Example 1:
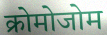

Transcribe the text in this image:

क्रोमोजोम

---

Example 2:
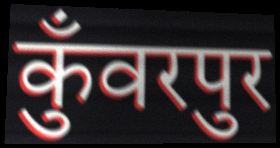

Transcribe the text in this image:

कुँवरपुर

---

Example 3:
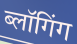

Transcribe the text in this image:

ब्‍लॉगिंग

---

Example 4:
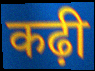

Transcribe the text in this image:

कढ़ी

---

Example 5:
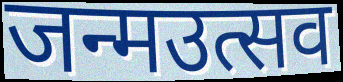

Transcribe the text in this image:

जन्मउत्सव